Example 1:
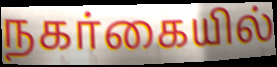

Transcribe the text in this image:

நகர்கையில்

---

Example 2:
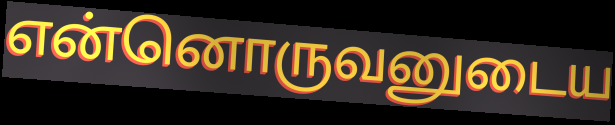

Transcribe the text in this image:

என்னொருவனுடைய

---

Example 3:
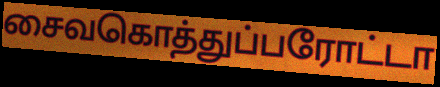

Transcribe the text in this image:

சைவகொத்துப்பரோட்டா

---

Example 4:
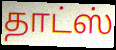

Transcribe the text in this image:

தாட்ஸ்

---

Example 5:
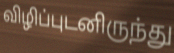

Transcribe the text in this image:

விழிப்புடனிருந்து